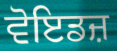
ਵੋਇਡਜ਼